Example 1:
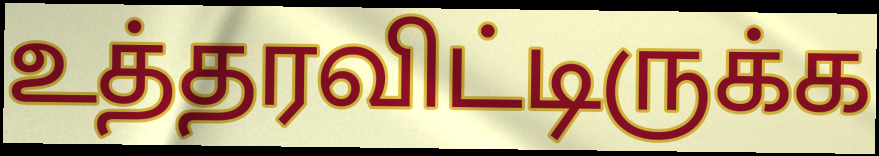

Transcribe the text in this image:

உத்தரவிட்டிருக்க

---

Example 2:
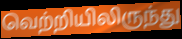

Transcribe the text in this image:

வெற்றியிலிருந்து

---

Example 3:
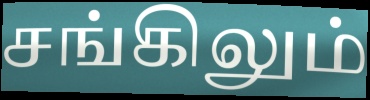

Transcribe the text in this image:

சங்கிலும்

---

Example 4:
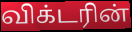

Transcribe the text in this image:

விக்டரின்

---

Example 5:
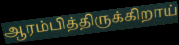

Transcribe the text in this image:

ஆரம்பித்திருக்கிறாய்